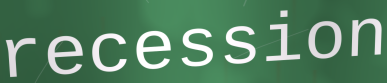
recession